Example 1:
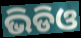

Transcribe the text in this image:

ଭିଡିଓ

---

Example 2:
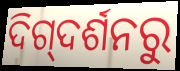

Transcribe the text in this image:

ଦିଗ୍‌ଦର୍ଶନରୁ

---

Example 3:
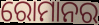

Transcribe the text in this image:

ରୋମାନର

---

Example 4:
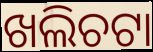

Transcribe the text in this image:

ଖଲିଚଟା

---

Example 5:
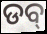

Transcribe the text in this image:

ଡବ୍